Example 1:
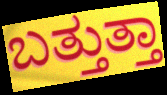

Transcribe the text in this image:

ಬತ್ತುತ್ತಾ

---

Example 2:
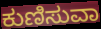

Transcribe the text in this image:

ಕುಣಿಸುವಾ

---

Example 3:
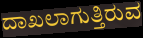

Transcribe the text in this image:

ದಾಖಲಾಗುತ್ತಿರುವ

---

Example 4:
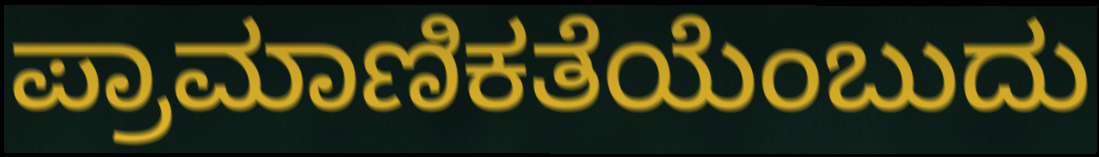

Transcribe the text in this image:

ಪ್ರಾಮಾಣಿಕತೆಯೆಂಬುದು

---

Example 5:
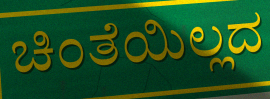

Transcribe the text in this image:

ಚಿಂತೆಯಿಲ್ಲದ